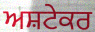
ਅਸ਼ਟੇਕਰ